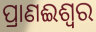
ପ୍ରାଣଈଶ୍ୱର